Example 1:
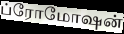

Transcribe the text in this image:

ப்ரோமோஷன்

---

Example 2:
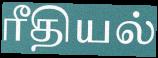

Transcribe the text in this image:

ரீதியல்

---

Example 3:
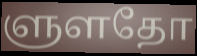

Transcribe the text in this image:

ளுளதோ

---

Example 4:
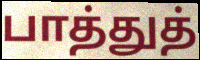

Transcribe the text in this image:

பாத்துத்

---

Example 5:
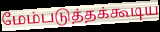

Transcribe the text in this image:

மேம்படுத்தக்கூடிய